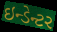
ઇન્ડેન્ટર